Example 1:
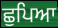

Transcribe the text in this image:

ਛੁਪਿਆ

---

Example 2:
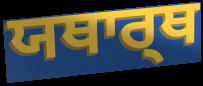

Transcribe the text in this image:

ਯਥਾਰ੍ਥ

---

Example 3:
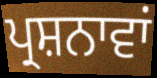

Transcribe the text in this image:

ਪ੍ਰਸ਼ਨਾਵਾਂ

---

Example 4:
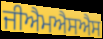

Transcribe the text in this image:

ਜੀਐਮਐਸਐਸ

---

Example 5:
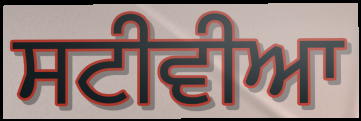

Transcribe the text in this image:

ਸਟੀਵੀਆ